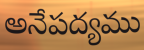
అనేపద్యము